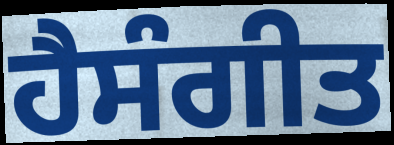
ਹੈਸੰਗੀਤ